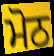
ਮੋਠ